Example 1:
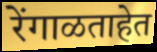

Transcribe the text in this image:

रेंगाळताहेत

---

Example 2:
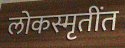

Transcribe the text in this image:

लोकस्मृतींत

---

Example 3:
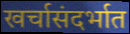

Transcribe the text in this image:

खर्चासंदर्भात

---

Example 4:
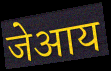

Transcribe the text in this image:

जेआय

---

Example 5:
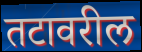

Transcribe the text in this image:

तटावरील